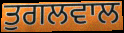
ਤੁਗਲਵਾਲ